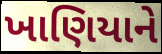
ખાણિયાને